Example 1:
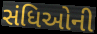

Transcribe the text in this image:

સંધિઓની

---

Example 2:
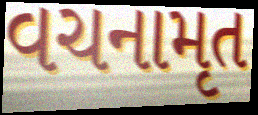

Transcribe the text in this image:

વચનામૃત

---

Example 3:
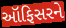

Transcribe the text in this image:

ઑફિસરને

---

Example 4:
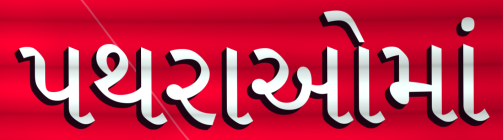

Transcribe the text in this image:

પથરાઓમાં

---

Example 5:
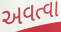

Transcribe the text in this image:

અવત્વા